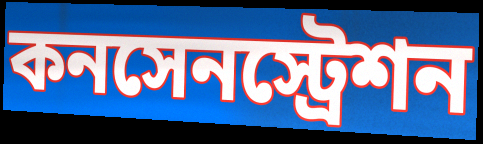
কনসেনস্ট্রেশন